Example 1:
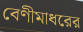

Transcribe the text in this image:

বেণীমাধরের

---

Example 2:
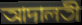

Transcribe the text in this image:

আদালতী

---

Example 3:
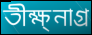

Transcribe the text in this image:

তীক্ষ্নাগ্র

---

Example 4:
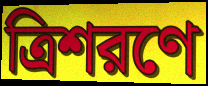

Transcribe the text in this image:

ত্রিশরণে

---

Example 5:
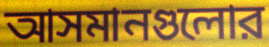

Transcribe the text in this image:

আসমানগুলোর